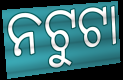
ନଟୁଟା